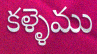
కళ్ళెము